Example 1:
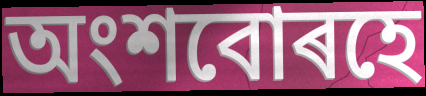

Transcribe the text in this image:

অংশবোৰহে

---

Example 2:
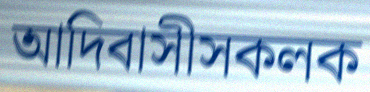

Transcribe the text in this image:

আদিবাসীসকলক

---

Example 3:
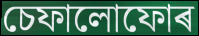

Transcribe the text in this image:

চেফালোফোৰ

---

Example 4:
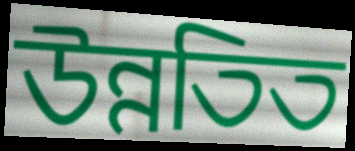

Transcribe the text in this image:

উন্নতিত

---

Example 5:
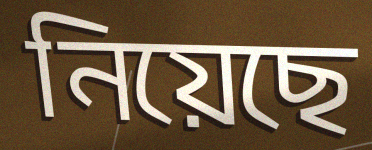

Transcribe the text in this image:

নিয়েছে